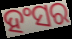
ହଂସର